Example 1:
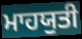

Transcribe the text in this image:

ਮਾਹਯੁਤੀ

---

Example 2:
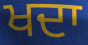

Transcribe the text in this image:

ਖਦਾ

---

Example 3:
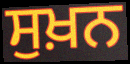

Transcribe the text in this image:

ਸੁਖ਼ਨ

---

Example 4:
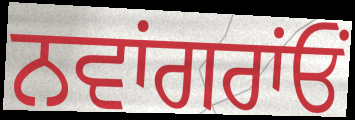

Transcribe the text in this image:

ਨਵਾਂਗਰਾਂਓਂ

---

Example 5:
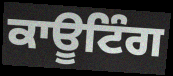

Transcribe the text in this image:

ਕਾਊਟਿੰਗ